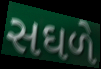
સઘળે